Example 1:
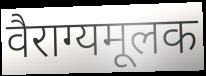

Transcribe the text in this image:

वैराग्यमूलक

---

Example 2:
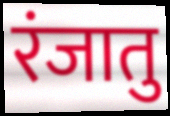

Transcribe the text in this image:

रंजातु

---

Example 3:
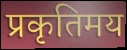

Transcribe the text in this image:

प्रकृतिमय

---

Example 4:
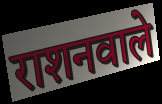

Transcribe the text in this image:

राशनवाले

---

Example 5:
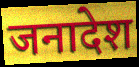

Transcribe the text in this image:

जनादेश